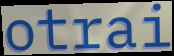
otrai